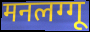
मनलग्गू